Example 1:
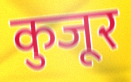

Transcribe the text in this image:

कुजूर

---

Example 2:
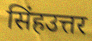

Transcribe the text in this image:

सिंहउत्तर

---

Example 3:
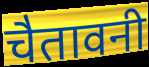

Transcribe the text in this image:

चैतावनी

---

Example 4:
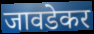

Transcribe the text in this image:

जावडेकर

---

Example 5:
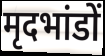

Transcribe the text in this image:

मृदभांडों